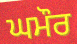
ਘਮੌਰ